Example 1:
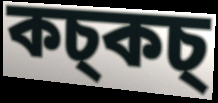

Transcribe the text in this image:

কচ্কচ্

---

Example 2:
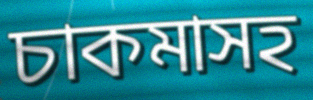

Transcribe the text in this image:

চাকমাসহ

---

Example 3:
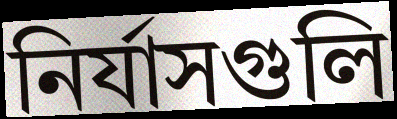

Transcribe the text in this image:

নির্যাসগুলি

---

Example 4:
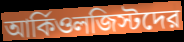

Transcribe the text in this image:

আর্কিওলজিস্টদের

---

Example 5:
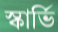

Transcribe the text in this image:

স্কার্ভি